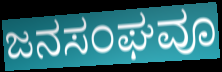
ಜನಸಂಘವೂ